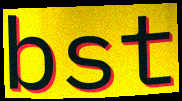
bst